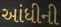
આંધીની